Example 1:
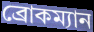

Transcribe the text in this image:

ব্রোকম্যান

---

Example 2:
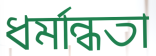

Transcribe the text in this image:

ধর্মান্ধতা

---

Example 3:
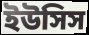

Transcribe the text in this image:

ইউসিস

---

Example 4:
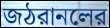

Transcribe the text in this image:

জঠরানলের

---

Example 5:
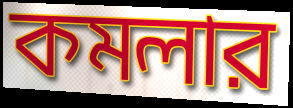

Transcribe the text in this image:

কমলার